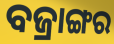
ବଜ୍ରାଙ୍ଗର